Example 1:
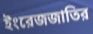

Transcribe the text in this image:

ইংরেজজাতির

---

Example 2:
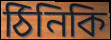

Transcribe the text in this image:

ঠিনিকি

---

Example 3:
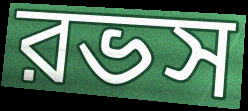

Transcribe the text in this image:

রভস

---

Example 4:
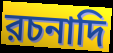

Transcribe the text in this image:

রচনাদি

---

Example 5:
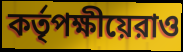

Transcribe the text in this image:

কর্তৃপক্ষীয়েরাও